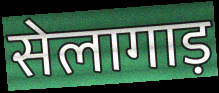
सेलागाड़